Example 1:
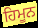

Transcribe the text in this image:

ਹਿਮੂਨ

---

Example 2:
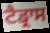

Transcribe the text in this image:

ਟੈਡ੍ਰਾਸ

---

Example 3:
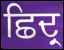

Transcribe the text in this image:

ਛਿਦ੍ਰ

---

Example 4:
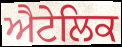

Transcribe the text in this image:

ਐਟੇਲਿਕ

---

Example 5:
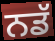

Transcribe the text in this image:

ਨਡੱ